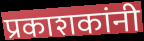
प्रकाशकांनी